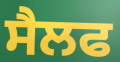
ਸੈਲਫ